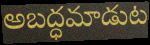
అబద్ధమాడుట